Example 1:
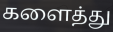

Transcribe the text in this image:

களைத்து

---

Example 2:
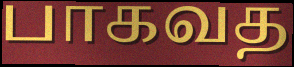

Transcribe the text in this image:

பாகவத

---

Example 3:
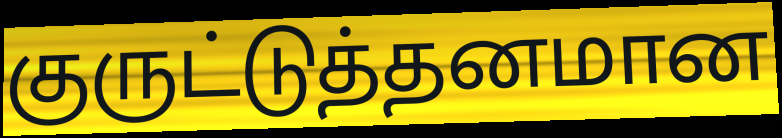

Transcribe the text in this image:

குருட்டுத்தனமான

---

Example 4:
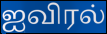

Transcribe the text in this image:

ஐவிரல்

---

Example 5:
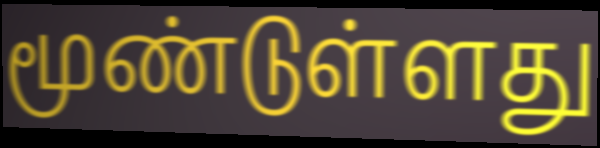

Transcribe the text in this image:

மூண்டுள்ளது